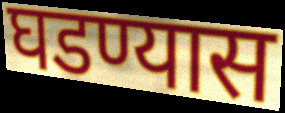
घडण्यास